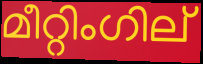
മീറ്റിംഗില്